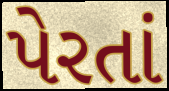
પેરતાં